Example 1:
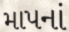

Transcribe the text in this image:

માપનાં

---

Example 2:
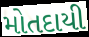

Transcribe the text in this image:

મોતદાયી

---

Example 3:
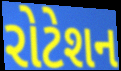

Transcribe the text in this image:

રોટેશન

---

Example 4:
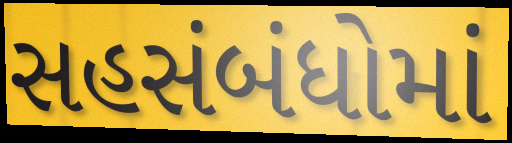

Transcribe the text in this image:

સહસંબંધોમાં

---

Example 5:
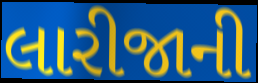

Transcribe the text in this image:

લારીજાની